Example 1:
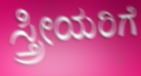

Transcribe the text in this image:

ಸ್ತ್ರೀಯರಿಗೆ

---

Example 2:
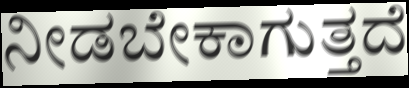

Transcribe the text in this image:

ನೀಡಬೇಕಾಗುತ್ತದೆ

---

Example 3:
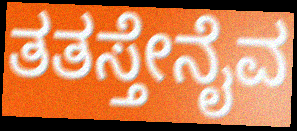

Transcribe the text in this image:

ತತಸ್ತೇನೈವ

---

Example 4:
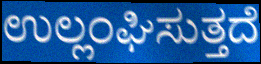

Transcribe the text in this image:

ಉಲ್ಲಂಘಿಸುತ್ತದೆ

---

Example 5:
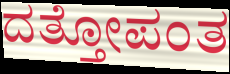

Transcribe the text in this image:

ದತ್ತೋಪಂತ